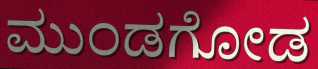
ಮುಂಡಗೋಡ